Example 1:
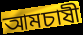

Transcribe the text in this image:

আমচাষী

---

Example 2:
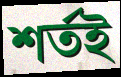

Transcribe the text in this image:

শর্তই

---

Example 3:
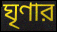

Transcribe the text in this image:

ঘৃণার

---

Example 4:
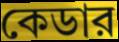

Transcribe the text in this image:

কেডার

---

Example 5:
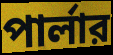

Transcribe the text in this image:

পার্লার